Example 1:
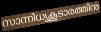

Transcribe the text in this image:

സാന്നിധ്യകൂടാരത്തിനു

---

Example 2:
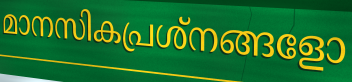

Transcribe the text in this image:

മാനസികപ്രശ്നങ്ങളോ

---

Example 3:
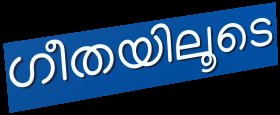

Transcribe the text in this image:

ഗീതയിലൂടെ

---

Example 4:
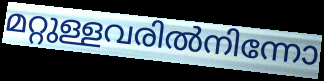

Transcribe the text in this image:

മറ്റുള്ളവരിൽനിന്നോ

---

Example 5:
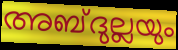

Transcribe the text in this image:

അബ്ദുല്ലയും